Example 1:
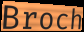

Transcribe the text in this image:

Broch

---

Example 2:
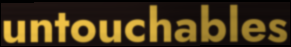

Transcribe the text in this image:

untouchables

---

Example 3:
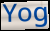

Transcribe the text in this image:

Yog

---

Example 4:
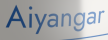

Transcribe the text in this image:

Aiyangar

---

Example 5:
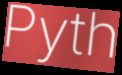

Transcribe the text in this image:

Pyth